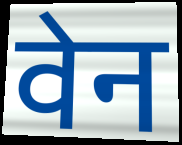
वेन